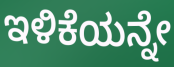
ಇಳಿಕೆಯನ್ನೇ